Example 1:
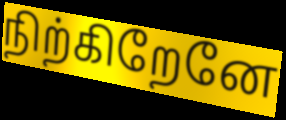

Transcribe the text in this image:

நிற்கிறேனே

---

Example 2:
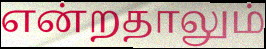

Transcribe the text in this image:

என்றதாலும்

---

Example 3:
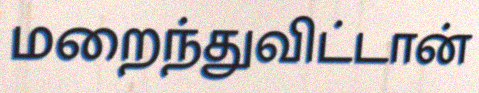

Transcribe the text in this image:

மறைந்துவிட்டான்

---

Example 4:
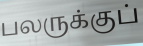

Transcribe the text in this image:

பலருக்குப்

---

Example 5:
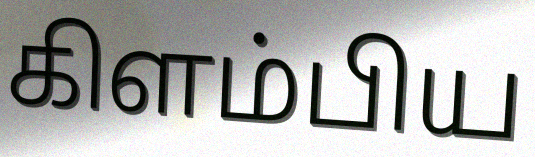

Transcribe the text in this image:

கிளம்பிய